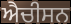
ਐਚੀਸਨ